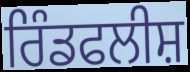
ਰਿੰਡਫਲੀਸ਼